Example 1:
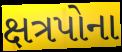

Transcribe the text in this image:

ક્ષત્રપોના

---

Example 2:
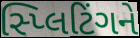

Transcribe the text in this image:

સ્પ્લિટિંગને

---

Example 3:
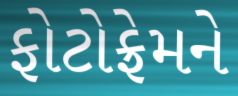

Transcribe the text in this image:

ફોટોફ્રેમને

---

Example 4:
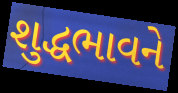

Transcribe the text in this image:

શુદ્ધભાવને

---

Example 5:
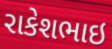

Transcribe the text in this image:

રાકેશભાઇ